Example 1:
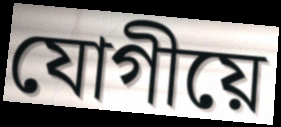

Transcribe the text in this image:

যোগীয়ে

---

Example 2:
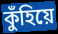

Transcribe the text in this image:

কুঁহিয়ে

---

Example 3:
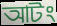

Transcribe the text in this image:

আটং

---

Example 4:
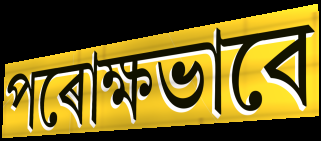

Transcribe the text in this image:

পৰোক্ষভাবে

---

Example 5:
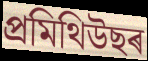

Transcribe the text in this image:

প্ৰমিথিউছৰ